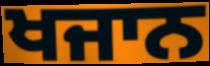
ਖਜਾਨ